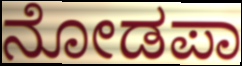
ನೋಡಪಾ